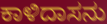
ಕಾಳಿದಾಸನು